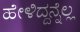
ಹೇಳಿದ್ದನ್ನೆಲ್ಲ